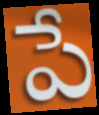
పే